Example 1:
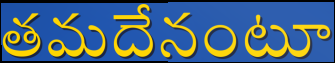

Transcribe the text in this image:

తమదేనంటూ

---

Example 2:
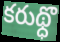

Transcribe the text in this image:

కరుథ్ధొ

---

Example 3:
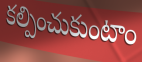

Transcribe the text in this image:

కల్పించుకుంటాం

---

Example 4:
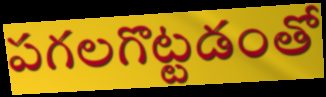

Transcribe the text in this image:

పగలగొట్టడంతో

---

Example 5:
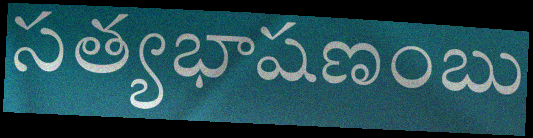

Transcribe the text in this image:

సత్యభాషణంబు